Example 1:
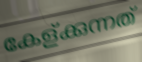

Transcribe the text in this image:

കേള്ക്കുന്നത്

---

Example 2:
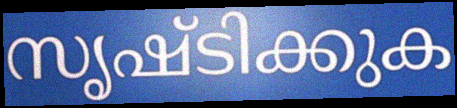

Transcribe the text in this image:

സൃഷ്ടിക്കുക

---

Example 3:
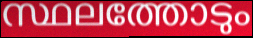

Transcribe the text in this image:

സ്ഥലത്തോടും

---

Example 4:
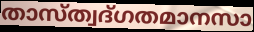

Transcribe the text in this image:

താസ്ത്വദ്ഗതമാനസാ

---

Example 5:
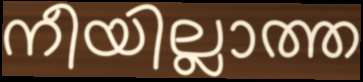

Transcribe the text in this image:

നീയില്ലാത്ത